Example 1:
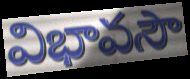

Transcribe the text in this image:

విభావసౌ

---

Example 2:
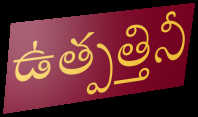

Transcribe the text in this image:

ఉత్పత్తినీ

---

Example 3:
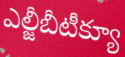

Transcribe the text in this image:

ఎల్జీబీటీక్యూ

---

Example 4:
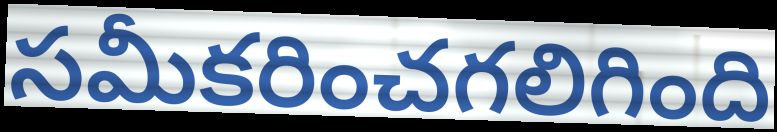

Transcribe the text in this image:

సమీకరించగలిగింది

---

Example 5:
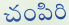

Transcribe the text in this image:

చంపిరి